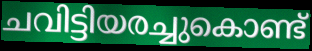
ചവിട്ടിയരച്ചുകൊണ്ട്